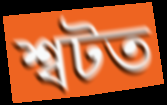
শ্বটত